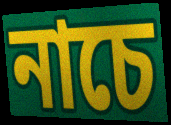
নাচে